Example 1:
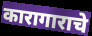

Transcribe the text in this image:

कारागाराचे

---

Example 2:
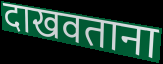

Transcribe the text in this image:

दाखवताना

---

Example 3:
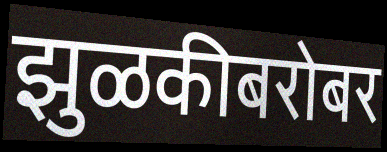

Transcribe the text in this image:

झुळकीबरोबर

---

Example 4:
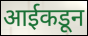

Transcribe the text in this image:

आईकडून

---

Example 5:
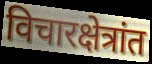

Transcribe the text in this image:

विचारक्षेत्रांत